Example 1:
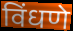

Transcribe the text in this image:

विंधणे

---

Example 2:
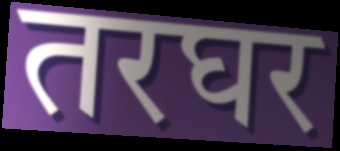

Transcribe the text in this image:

तरघर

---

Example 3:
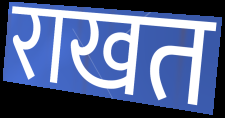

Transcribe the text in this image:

राखत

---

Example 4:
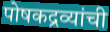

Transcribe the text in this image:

पोषकद्रव्यांची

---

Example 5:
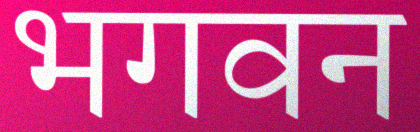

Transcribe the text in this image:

भगवन